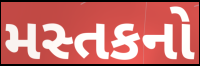
મસ્તકનો